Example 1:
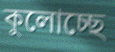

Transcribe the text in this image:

কুলোচ্ছে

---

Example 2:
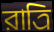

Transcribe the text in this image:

রাত্রি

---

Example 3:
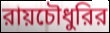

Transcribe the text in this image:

রায়চৌধুরির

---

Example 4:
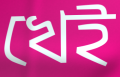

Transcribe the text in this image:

খেই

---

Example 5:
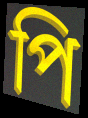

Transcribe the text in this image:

পি